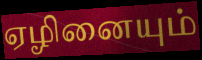
ஏழினையும்